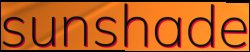
sunshade